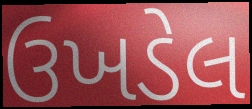
ઉખડેલ